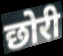
छोरी